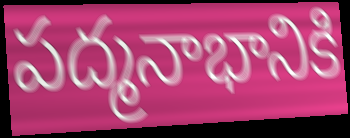
పద్మనాభానికి